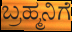
ಬ್ರಹ್ಮನಿಗೆ